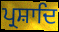
ਪ੍ਰਸ਼ਾਦਿ